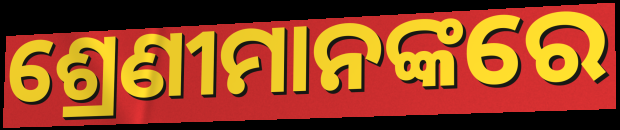
ଶ୍ରେଣୀମାନଙ୍କରେ